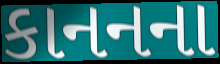
કાનનના